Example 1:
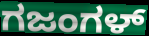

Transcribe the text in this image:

ಗಜಂಗಳ್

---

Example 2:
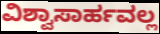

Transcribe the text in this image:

ವಿಶ್ವಾಸಾರ್ಹವಲ್ಲ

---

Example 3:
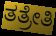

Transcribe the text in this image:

ತತ್ರೇತಿ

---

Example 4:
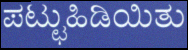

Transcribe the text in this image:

ಪಟ್ಟುಹಿಡಿಯಿತು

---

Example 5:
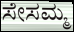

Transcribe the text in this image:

ಸೇಸಮ್ಮ